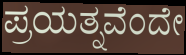
ಪ್ರಯತ್ನವೆಂದೇ